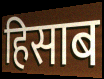
हिसाब